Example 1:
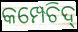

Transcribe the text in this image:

କମ୍ପେଚିଦ୍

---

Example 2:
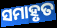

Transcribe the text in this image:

ସମାହୃତ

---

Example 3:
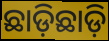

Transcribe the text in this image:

ଛାଡ଼ିଛାଡ଼ି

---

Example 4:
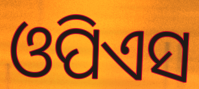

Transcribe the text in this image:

ଓପିଏସ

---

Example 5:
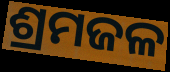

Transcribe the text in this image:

ଶ୍ରମଜଳ